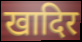
खादिर